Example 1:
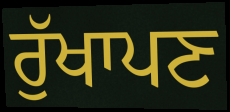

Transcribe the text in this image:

ਰੁੱਖਾਪਣ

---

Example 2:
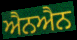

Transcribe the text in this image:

ਐਨਐਨ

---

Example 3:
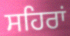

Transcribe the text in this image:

ਸਹਿਰਾਂ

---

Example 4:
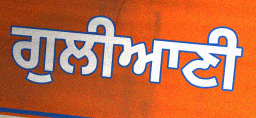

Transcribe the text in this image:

ਗੁਲੀਆਣੀ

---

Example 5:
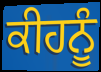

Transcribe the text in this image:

ਕੀਹਨੂੰ